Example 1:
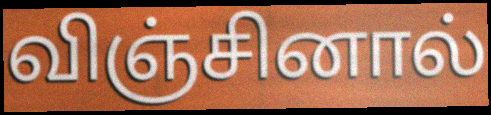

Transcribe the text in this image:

விஞ்சினால்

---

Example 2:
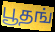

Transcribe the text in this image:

பூதங்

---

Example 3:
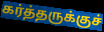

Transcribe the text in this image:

கர்த்தருக்குச்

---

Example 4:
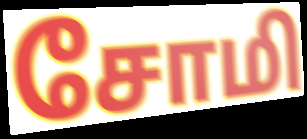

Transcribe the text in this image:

சோமி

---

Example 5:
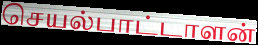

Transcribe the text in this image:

செயல்பாட்டாளன்